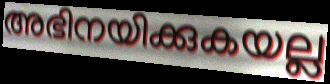
അഭിനയിക്കുകയല്ല